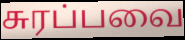
சுரப்பவை